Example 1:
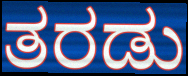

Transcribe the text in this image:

ತರಡು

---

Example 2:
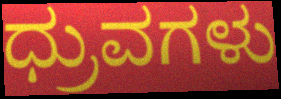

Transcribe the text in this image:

ಧ್ರುವಗಳು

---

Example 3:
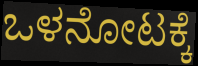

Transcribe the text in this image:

ಒಳನೋಟಕ್ಕೆ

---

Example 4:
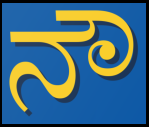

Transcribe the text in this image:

ನೌ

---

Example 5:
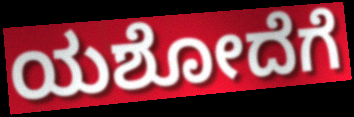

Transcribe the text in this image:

ಯಶೋದೆಗೆ